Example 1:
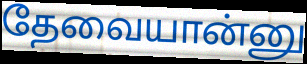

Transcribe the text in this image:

தேவையான்னு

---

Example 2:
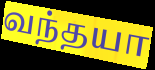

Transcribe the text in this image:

வந்தயா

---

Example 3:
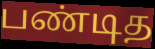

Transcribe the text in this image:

பண்டித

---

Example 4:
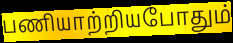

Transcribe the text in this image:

பணியாற்றியபோதும்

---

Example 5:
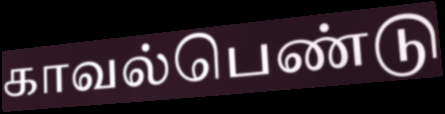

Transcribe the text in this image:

காவல்பெண்டு